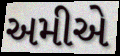
અમીએ